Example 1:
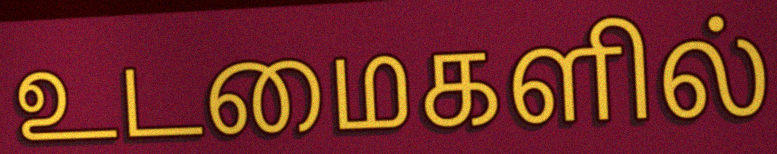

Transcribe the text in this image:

உடமைகளில்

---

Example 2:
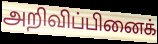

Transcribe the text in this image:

அறிவிப்பினைக்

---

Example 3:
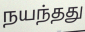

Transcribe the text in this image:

நயந்தது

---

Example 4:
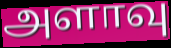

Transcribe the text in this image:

அளாவு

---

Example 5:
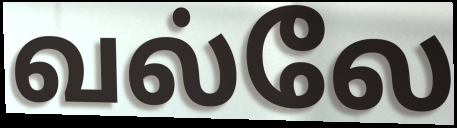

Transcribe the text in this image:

வல்லே